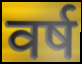
वर्ष